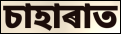
চাহাৰাত